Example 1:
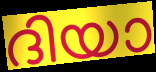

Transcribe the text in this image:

ദിയാ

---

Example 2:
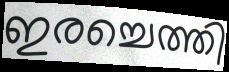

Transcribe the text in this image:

ഇരച്ചെത്തി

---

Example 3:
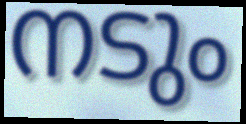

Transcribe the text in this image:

നടും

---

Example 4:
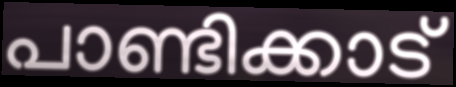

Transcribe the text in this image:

പാണ്ടിക്കാട്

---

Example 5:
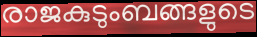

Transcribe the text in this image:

രാജകുടുംബങ്ങളുടെ